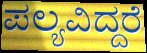
ಪಲ್ಯವಿದ್ದರೆ